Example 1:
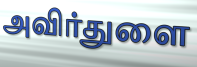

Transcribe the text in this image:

அவிர்துளை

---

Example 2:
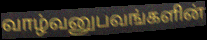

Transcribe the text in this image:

வாழ்வனுபவங்களின்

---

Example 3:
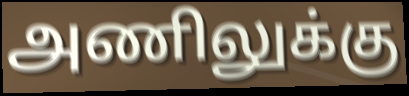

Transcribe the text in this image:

அணிலுக்கு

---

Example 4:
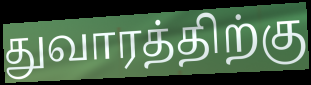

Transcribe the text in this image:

துவாரத்திற்கு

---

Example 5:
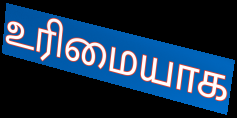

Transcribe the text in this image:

உரிமையாக